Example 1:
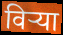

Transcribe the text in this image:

विऱ्या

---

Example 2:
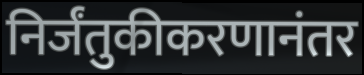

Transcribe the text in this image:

निर्जंतुकीकरणानंतर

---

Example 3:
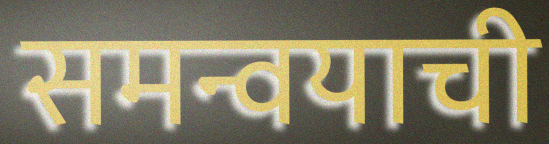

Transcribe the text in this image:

समन्वयाची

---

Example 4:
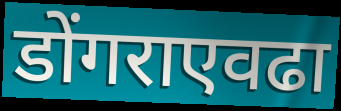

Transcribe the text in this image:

डोंगराएवढा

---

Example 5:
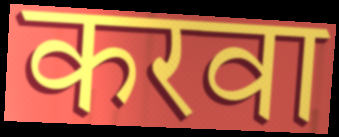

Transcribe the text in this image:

करवा